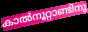
കാൽനൂറ്റാണ്ടിനു